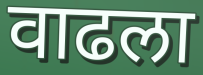
वाढला